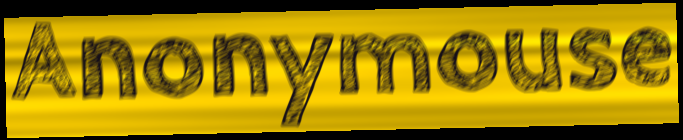
Anonymouse